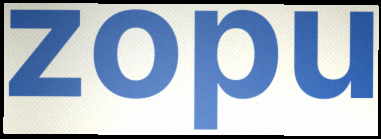
zopu